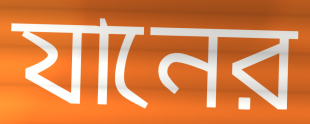
যানের